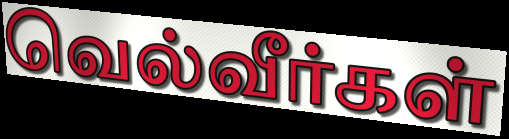
வெல்வீர்கள்